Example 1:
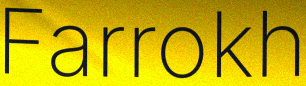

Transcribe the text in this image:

Farrokh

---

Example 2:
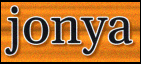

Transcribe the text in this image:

jonya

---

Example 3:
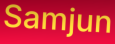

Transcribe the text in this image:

Samjun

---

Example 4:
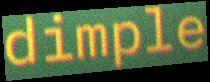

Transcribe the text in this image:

dimple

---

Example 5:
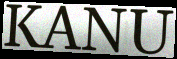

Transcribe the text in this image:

KANU